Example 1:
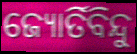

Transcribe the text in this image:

ଜ୍ୟୋର୍ତିବିନ୍ଦୁ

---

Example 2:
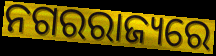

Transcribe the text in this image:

ନଗରରାଜ୍ୟରେ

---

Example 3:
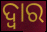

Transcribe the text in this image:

ଦ୍ୱାର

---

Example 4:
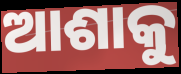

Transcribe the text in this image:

ଆଶାକୁ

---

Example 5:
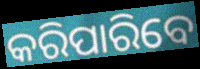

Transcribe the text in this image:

କରିପାରିବେ